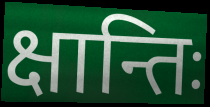
क्षान्तिः